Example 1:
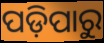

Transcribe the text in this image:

ପଡ଼ିପାରୁ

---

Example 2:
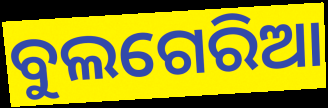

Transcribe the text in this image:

ବୁଲଗେରିଆ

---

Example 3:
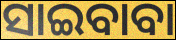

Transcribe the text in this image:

ସାଇବାବା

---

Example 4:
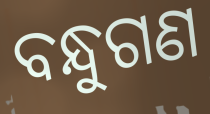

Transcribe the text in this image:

ବନ୍ଧୁଗଣ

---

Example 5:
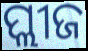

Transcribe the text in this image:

ପ୍ଲୀଜ